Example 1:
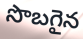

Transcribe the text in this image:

సొబగైన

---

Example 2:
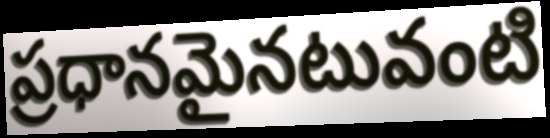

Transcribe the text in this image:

ప్రధానమైనటువంటి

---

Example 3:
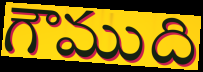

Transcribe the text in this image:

గౌముది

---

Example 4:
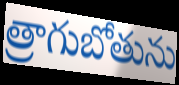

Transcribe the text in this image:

త్రాగుబోతును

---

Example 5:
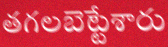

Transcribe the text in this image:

తగలబెట్టేశారు